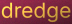
dredge